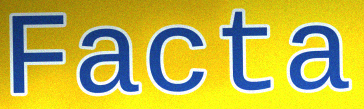
Facta